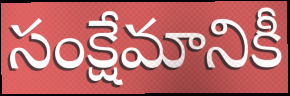
సంక్షేమానికీ